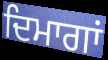
ਦਿਮਾਗਾਂ